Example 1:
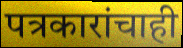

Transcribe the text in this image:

पत्रकारांचाही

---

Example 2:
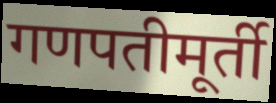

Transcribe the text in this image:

गणपतीमूर्ती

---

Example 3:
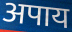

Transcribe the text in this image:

अपाय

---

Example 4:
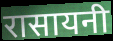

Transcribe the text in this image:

रासायनी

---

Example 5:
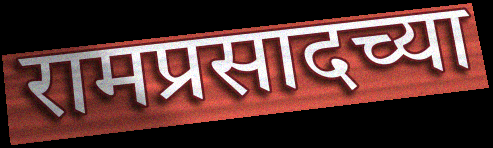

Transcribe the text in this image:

रामप्रसादच्या